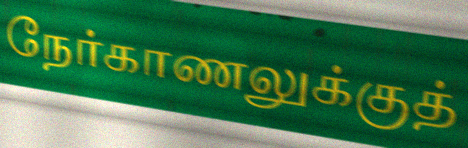
நேர்காணலுக்குத்